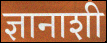
ज्ञानाशी